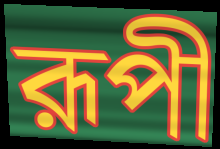
রূপী